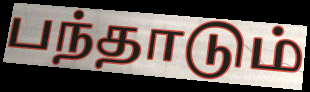
பந்தாடும்